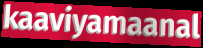
kaaviyamaanal